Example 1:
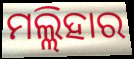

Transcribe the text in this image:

ମଲ୍ଲିହାର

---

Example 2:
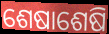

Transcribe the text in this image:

ଶେଷାଶେଷି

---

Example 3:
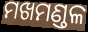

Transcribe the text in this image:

ମଖମଣ୍ଡଳ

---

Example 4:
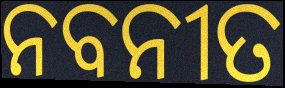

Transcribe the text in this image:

ନବନୀତ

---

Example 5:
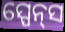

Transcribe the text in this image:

ସ୍ପେନ୍‌ସ